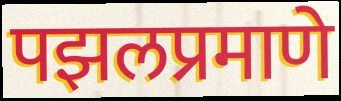
पझलप्रमाणे